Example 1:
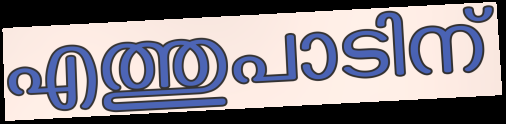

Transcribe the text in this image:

എത്തുപാടിന്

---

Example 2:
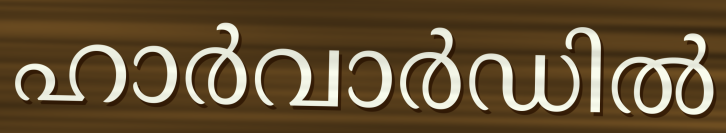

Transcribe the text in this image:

ഹാർവാർഡിൽ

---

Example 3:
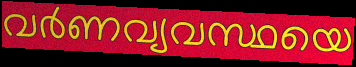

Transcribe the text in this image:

വർണവ്യവസ്ഥയെ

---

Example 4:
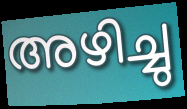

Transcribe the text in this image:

അഴിച്ചു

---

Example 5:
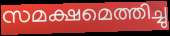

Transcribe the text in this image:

സമക്ഷമെത്തിച്ചു